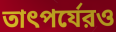
তাৎপর্যেরও